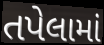
તપેલામાં